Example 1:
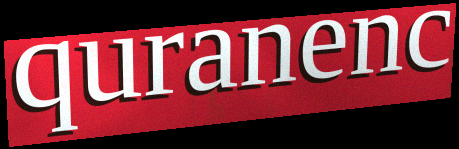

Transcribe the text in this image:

quranenc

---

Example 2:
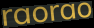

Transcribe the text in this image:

raorao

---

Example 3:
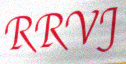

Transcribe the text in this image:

RRVJ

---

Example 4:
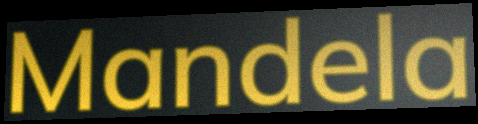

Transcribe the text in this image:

Mandela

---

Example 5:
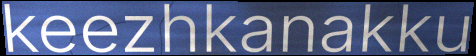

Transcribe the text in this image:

keezhkanakku